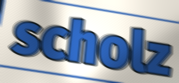
scholz